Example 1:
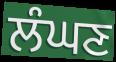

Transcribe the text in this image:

ਲੰਘਣ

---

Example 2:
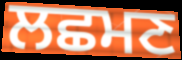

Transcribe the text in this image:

ਲਛਮਣ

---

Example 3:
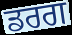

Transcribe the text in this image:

ਡਰਗ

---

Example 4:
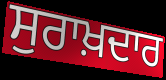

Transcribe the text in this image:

ਸੁਰਾਖ਼ਦਾਰ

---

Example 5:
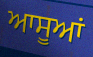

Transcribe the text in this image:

ਆਸੂਆਂ